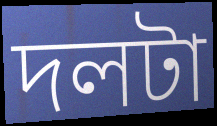
দলটা